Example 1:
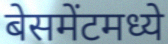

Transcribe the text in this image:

बेसमेंटमध्ये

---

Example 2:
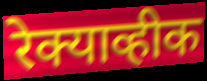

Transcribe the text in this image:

रेक्याव्हीक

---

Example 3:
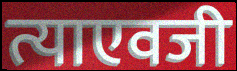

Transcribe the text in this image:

त्याएवजी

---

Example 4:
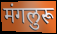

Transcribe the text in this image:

मंगलुरू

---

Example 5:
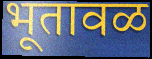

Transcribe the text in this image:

भूतावळ